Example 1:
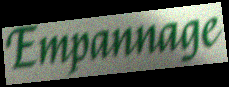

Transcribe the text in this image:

Empannage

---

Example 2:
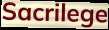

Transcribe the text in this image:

Sacrilege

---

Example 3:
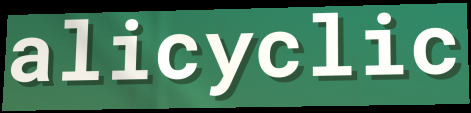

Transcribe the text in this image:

alicyclic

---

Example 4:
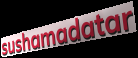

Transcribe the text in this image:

sushamadatar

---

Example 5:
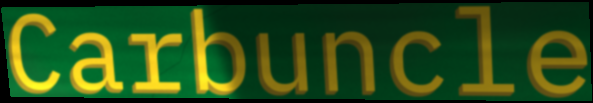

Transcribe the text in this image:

Carbuncle